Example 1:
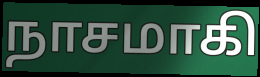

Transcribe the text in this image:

நாசமாகி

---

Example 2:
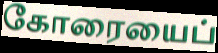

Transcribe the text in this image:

கோரையைப்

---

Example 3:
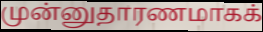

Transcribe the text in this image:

முன்னுதாரணமாகக்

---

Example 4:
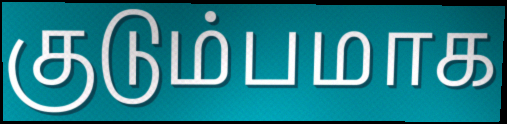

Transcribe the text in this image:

குடும்பமாக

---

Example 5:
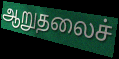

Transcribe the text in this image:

ஆறுதலைச்